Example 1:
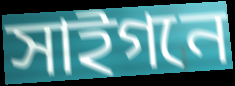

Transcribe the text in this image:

সাইগনে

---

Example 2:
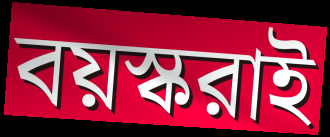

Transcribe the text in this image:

বয়স্করাই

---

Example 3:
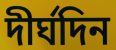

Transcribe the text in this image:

দীর্ঘদিন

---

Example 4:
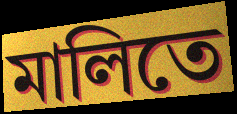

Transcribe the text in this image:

মালিতে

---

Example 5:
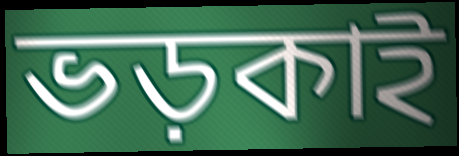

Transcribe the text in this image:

ভড়কাই